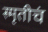
स्मृतीचं